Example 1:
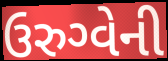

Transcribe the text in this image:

ઉરુગ્વેની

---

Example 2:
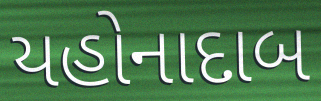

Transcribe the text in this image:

યહોનાદાબ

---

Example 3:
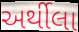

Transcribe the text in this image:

અર્થીલા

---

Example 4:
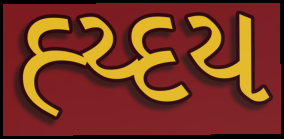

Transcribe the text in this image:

હ્ય્દય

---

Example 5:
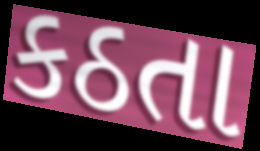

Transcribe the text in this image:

કઠતા